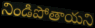
నిండిపోతాయని